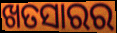
ଖତସାରର